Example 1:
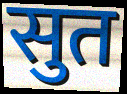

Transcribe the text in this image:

सुत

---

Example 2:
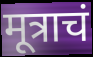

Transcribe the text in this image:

मूत्राचं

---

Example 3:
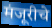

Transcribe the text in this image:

मंजूरीचे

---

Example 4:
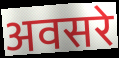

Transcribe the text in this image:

अवसरे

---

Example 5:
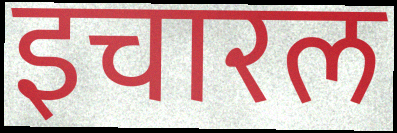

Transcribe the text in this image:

इचारल